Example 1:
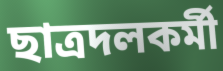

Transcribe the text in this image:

ছাত্রদলকর্মী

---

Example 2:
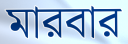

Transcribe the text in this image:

মারবার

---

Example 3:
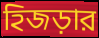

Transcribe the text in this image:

হিজড়ার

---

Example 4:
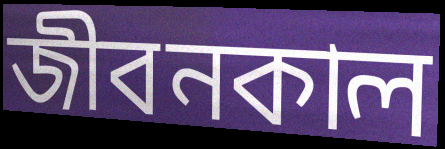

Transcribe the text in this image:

জীবনকাল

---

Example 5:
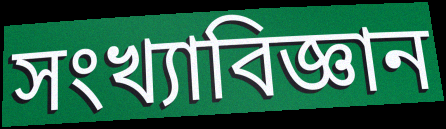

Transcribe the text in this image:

সংখ্যাবিজ্ঞান